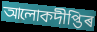
আলোকদীপ্তিৰ